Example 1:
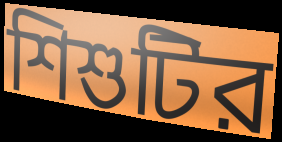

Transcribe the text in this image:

শিশুটির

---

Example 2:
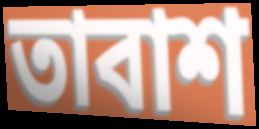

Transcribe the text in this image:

তাবাশ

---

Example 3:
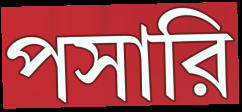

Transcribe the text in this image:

পসারি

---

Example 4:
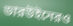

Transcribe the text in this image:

ডারউইনেরও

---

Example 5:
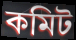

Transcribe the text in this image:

কমিট